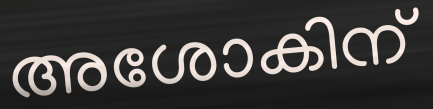
അശോകിന്